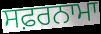
ਸਫ਼ਰਨਾਮਾ